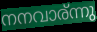
നനവാര്ന്നു